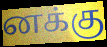
னக்கு